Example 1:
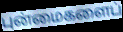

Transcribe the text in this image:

புன்மைகளைப்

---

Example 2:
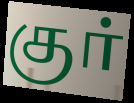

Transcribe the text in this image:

குர்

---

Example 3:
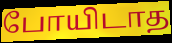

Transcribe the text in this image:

போயிடாத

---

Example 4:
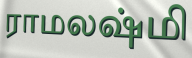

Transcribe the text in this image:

ராமலஷ்மி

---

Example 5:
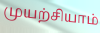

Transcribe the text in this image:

முயற்சியாம்